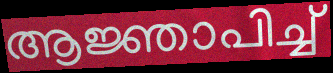
ആജ്ഞാപിച്ച്